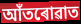
আঁতৰোৱাত